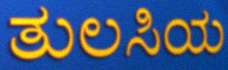
ತುಲಸಿಯ